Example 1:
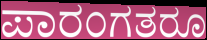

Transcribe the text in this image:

ಪಾರಂಗತರೂ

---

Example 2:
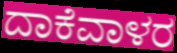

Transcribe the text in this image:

ದಾಕೆವಾಳರ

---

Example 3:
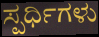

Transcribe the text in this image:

ಸ್ಪರ್ಧಿಗಳು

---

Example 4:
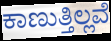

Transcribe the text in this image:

ಕಾಣುತ್ತಿಲ್ಲವೆ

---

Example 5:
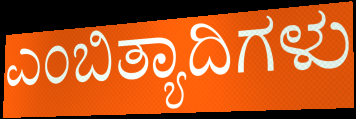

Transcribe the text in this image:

ಎಂಬಿತ್ಯಾದಿಗಳು